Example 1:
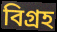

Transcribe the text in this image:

বিগ্ৰহ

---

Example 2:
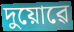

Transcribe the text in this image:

দুয়োৱে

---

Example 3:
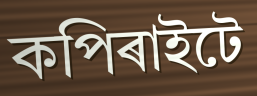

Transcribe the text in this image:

কপিৰাইটে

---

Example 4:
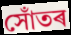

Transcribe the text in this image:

সোঁতৰ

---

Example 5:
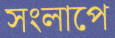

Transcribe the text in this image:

সংলাপে